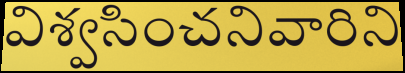
విశ్వసించనివారిని